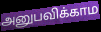
அனுபவிக்காம